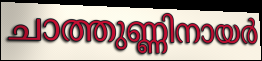
ചാത്തുണ്ണിനായർ